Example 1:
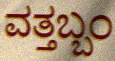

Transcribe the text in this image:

ವತ್ತಬ್ಬಂ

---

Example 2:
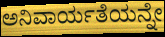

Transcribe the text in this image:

ಅನಿವಾರ್ಯತೆಯನ್ನೇ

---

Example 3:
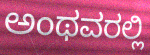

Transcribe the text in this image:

ಅಂಥವರಲ್ಲಿ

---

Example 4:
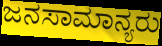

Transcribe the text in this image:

ಜನಸಾಮಾನ್ಯರು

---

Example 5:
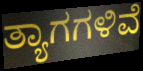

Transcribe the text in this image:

ತ್ಯಾಗಗಳಿವೆ